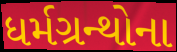
ધર્મગ્રન્થોના